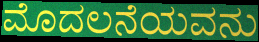
ಮೊದಲನೆಯವನು